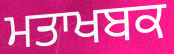
ਮਤਾਖਬਕ